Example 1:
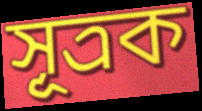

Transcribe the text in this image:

সূত্ৰক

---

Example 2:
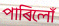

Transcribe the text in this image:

পাৰিলোঁ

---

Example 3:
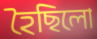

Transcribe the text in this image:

হৈছিলো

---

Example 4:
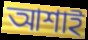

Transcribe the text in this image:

আশাই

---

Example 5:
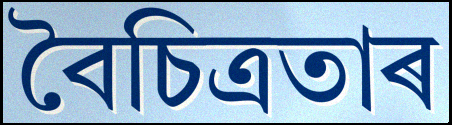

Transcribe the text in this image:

বৈচিত্ৰতাৰ